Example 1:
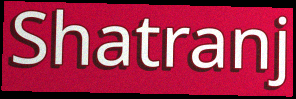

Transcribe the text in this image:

Shatranj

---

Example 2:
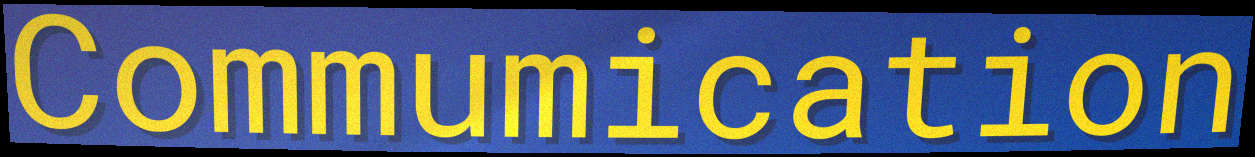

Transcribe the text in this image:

Commumication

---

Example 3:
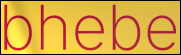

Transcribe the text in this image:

bhebe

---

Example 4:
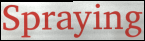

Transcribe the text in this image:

Spraying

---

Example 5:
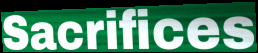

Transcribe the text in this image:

Sacrifices